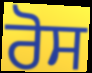
ਰੋਸ